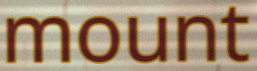
mount